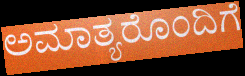
ಅಮಾತ್ಯರೊಂದಿಗೆ